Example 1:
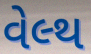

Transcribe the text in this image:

વેલ્થ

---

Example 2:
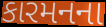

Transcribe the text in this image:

કારમનના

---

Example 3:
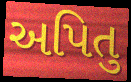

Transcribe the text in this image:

અપિતુ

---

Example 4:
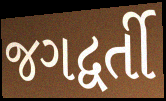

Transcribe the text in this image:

જગદ્વર્તી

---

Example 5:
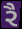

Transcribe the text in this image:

રૈ